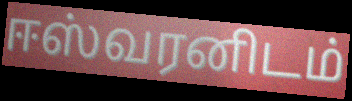
ஈஸ்வரனிடம்